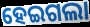
ହେଇଗଲା